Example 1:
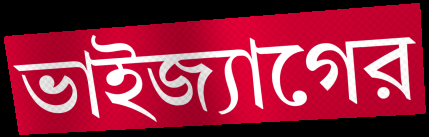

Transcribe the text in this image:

ভাইজ্যাগের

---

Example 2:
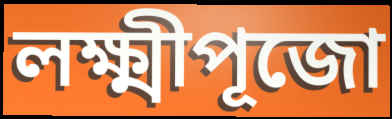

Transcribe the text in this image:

লক্ষ্মীপূজো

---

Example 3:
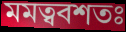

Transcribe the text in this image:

মমত্ববশতঃ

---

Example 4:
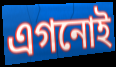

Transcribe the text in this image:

এগনোই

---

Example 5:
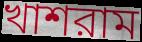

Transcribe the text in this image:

খাশরাম